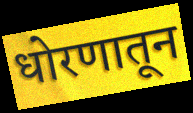
धोरणातून